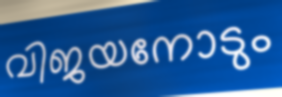
വിജയനോടും